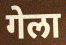
गेला